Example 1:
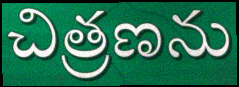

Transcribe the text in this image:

చిత్రణను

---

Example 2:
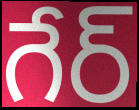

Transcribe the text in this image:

గేర్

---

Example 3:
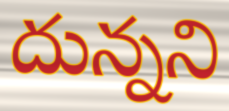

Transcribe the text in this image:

దున్నని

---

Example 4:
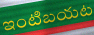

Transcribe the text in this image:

ఇంటిబయట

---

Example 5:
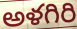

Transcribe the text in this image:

అళగిరి